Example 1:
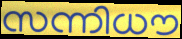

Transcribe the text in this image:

സന്നിധൗ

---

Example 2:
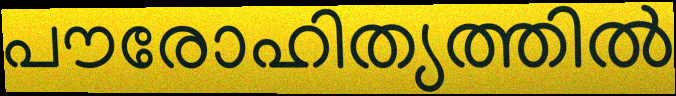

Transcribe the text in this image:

പൗരോഹിത്യത്തിൽ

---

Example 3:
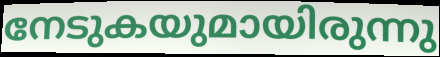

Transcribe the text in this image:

നേടുകയുമായിരുന്നു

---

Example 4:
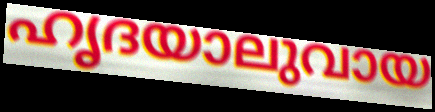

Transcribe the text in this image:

ഹൃദയാലുവായ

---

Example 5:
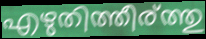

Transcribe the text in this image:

എഴുതിത്തീര്ത്തു